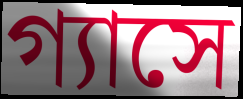
গ্যাসে